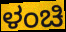
ಳಂಚಿ